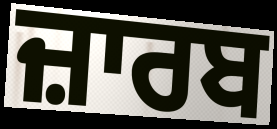
ਜ਼ਾਰਬ